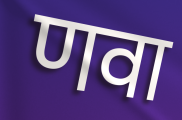
णवा